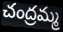
చంద్రమ్మ